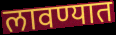
लावण्यात